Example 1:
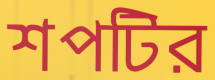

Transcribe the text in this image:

শপটির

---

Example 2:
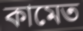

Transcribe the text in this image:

কামেত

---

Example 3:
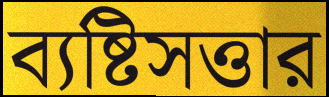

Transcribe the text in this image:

ব্যষ্টিসত্তার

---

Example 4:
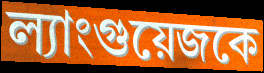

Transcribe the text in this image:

ল্যাংগুয়েজকে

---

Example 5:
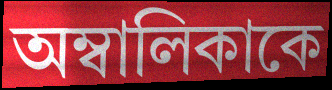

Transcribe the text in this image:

অম্বালিকাকে